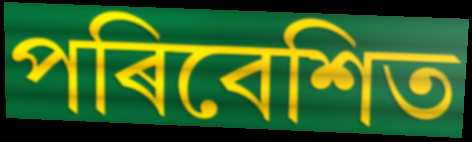
পৰিবেশিত